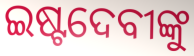
ଇଷ୍ଟଦେବୀଙ୍କୁ